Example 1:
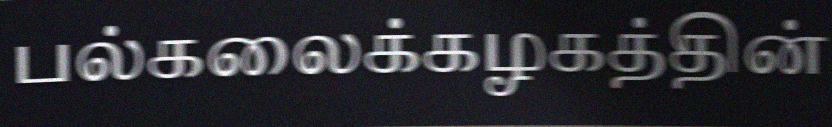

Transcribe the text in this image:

பல்கலைக்கழகத்தின்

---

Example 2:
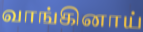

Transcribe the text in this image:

வாங்கினாய்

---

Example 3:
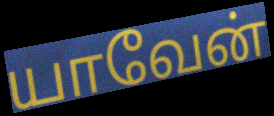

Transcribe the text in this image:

யாவேன்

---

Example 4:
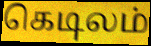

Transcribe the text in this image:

கெடிலம்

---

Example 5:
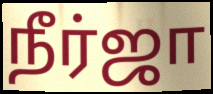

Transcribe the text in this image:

நீர்ஜா